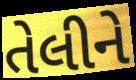
તેલીને